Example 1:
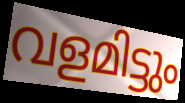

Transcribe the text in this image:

വളമിട്ടും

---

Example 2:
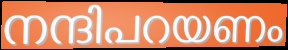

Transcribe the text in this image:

നന്ദിപറയണം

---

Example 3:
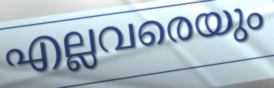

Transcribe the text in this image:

എല്ലവരെയും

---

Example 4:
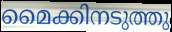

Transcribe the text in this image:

മൈക്കിനടുത്തു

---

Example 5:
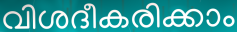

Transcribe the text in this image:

വിശദീകരിക്കാം